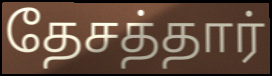
தேசத்தார்